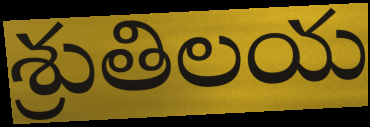
శ్రుతిలయ